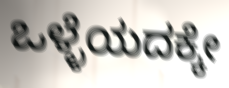
ಒಳ್ಳೆಯದಕ್ಕೇ